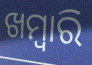
ଖମ୍ୱାରି